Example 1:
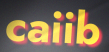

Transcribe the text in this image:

caiib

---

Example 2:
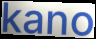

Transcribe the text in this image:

kano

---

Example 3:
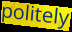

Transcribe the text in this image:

politely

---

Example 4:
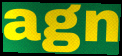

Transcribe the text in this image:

agn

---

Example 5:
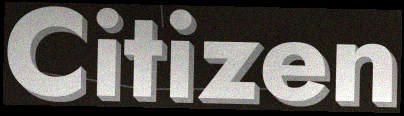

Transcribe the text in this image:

Citizen